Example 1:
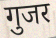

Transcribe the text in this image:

गुजर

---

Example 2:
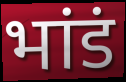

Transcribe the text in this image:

भांडं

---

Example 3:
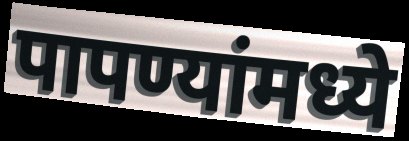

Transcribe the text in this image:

पापण्यांमध्ये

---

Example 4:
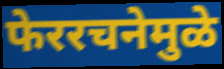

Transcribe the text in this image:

फेररचनेमुळे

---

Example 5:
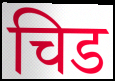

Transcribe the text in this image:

चिड